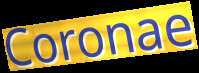
Coronae